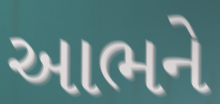
આભને